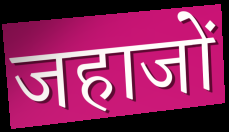
जहाजों